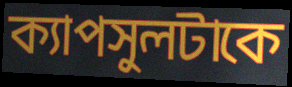
ক্যাপসুলটাকে